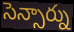
సెన్సార్ను